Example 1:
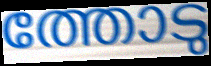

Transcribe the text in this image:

ത്തോടു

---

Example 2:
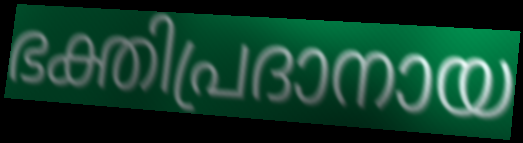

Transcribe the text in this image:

ഭക്തിപ്രദാനായ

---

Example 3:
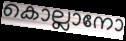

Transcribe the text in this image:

കൊല്ലാനോ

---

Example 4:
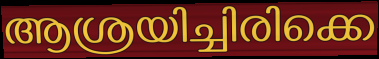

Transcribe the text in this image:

ആശ്രയിച്ചിരിക്കെ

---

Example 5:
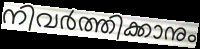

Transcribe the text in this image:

നിവർത്തിക്കാനും